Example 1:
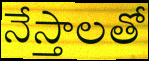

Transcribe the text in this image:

నేస్తాలతో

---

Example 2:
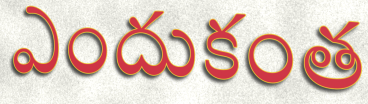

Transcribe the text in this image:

ఎందుకంత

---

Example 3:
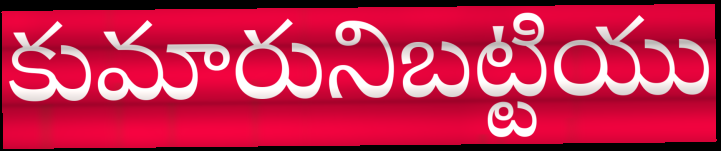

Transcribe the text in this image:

కుమారునిబట్టియు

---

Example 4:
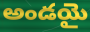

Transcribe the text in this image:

అండయై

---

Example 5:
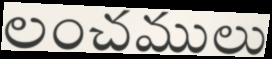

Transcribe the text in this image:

లంచములు